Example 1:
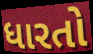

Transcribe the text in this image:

ધારતો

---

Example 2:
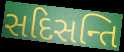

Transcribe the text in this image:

સદિસન્તિ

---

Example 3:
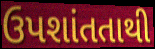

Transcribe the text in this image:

ઉપશાંતતાથી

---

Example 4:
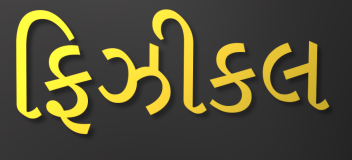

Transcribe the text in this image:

ફિઝીકલ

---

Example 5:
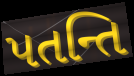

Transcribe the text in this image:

પતન્તિ